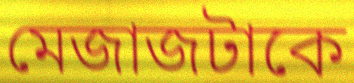
মেজাজটাকে